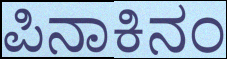
ಪಿನಾಕಿನಂ